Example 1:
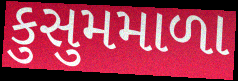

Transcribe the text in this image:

કુસુમમાળા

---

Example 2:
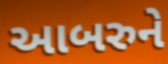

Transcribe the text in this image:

આબરુને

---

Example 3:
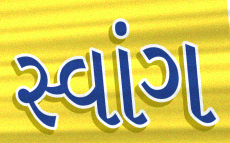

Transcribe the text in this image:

સ્વાંગ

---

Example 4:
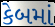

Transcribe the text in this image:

કેબમાં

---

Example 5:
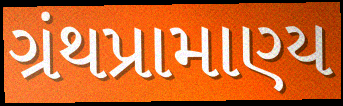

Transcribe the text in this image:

ગ્રંથપ્રામાણ્ય